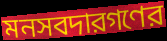
মনসবদারগণের